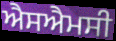
ਐਸਐਮਸੀ